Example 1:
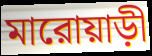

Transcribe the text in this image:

মারোয়াড়ী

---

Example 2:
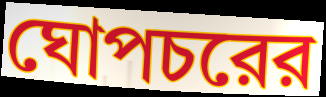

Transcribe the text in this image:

ঘোপচরের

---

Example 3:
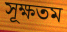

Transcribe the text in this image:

সূক্ষতম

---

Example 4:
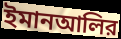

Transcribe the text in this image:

ইমানআলির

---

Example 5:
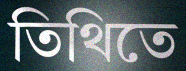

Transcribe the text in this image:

তিথিতে